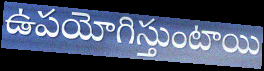
ఉపయోగిస్తుంటాయి